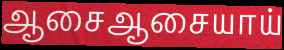
ஆசைஆசையாய்